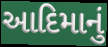
આદિમાનું